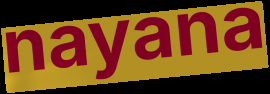
nayana